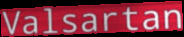
Valsartan